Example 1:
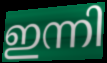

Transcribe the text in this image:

ഇന്നി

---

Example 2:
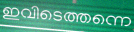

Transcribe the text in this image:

ഇവിടെത്തന്നെ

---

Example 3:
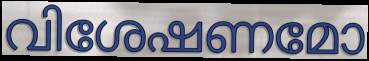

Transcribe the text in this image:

വിശേഷണമോ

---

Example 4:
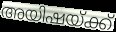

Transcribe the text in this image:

അയിഷയ്ക്ക്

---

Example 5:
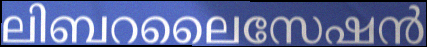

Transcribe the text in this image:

ലിബറലൈസേഷൻ